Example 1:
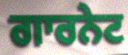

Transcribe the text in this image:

ਗਾਰਨੇਟ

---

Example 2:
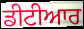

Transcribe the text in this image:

ਡੀਟੀਆਰ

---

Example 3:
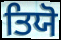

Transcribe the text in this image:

ਤਿਯੋ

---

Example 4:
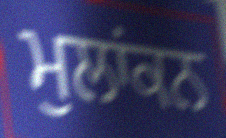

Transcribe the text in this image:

ਮੁਲਾਂਕਨ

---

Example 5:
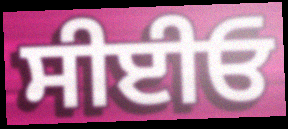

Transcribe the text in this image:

ਸੀਈਓ